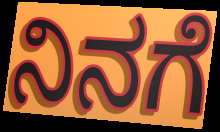
ನಿನಗೆ